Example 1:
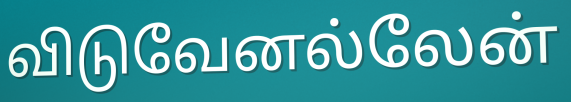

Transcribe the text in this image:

விடுவேனல்லேன்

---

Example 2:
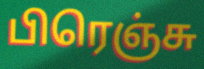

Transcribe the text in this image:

பிரெஞ்சு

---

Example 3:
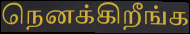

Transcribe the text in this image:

நெனக்கிறீங்க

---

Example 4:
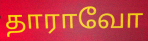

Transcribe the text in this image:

தாராவோ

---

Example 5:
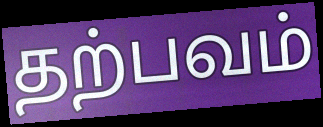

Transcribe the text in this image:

தற்பவம்